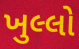
ખુલ્લો